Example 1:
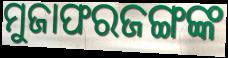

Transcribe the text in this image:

ମୁଜାଫରଜଙ୍ଗଙ୍କ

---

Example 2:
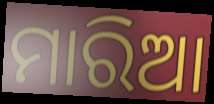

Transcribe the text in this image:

ମାରିଆ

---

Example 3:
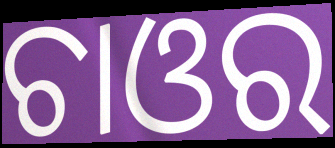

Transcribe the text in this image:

ଚାଓର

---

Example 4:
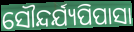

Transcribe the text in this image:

ସୌନ୍ଦର୍ଯ୍ୟପିପାସା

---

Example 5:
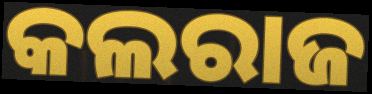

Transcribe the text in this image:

କଲରାଜ